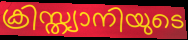
ക്രിസ്ത്യാനിയുടെ